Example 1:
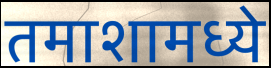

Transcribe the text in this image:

तमाशामध्ये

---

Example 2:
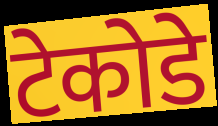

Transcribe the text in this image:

टेकोडे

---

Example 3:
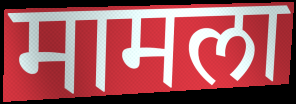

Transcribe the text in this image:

मामला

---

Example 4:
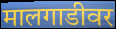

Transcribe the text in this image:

मालगाडीवर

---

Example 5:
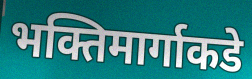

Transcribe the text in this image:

भक्तिमार्गाकडे